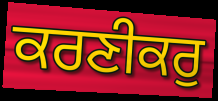
ਕਰਣੀਕਰੁ